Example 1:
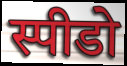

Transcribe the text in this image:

स्पीडो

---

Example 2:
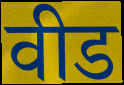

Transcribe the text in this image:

वीड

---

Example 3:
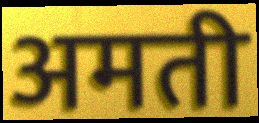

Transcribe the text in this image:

अमती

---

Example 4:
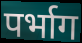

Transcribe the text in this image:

पर्भाग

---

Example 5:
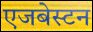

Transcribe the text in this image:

एजबेस्‍टन